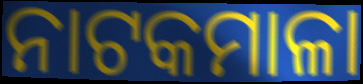
ନାଟକମାଳା